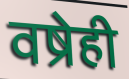
वष्रेही